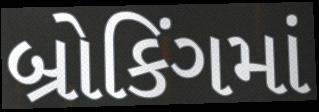
બ્રોકિંગમાં